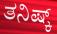
ತನಿಷ್ಕ್